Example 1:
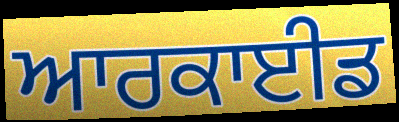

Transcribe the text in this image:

ਆਰਕਾਈਡ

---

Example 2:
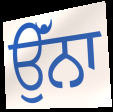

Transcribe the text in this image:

ਉਂੱਨਾ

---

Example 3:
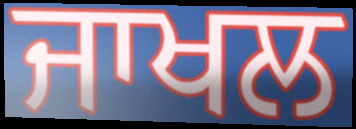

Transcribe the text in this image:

ਜਾਖਲ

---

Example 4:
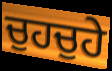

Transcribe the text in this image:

ਚੁਹਚੁਹੇ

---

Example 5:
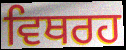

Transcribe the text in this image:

ਵਿਥਰਹ